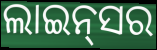
ଲାଇନ୍‍ସର